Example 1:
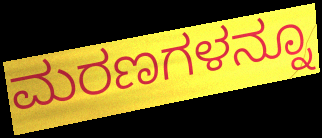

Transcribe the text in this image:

ಮರಣಗಳನ್ನೂ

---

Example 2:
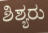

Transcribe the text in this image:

ಶಿಶ್ಯರು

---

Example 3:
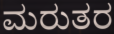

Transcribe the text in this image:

ಮರುತರ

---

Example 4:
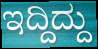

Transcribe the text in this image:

ಇದ್ದಿದ್ದು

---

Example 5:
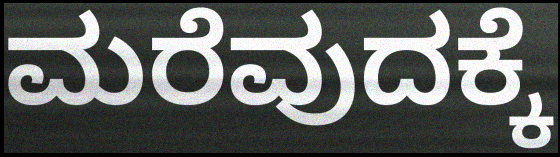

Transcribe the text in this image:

ಮರೆವುದಕ್ಕೆ